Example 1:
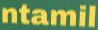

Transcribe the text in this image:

ntamil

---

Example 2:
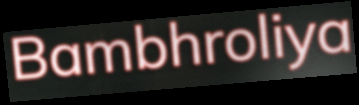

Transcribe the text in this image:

Bambhroliya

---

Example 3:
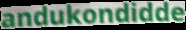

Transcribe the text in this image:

andukondidde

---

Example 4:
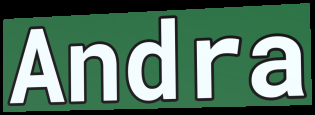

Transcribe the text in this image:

Andra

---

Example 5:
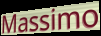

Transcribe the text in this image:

Massimo